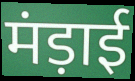
मंड़ाई